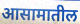
आसामातील